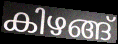
കിഴങ്ങ്